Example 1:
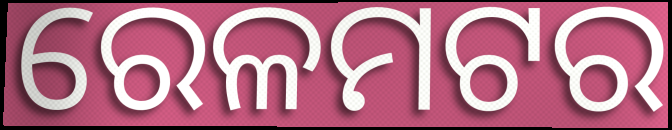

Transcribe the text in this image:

ରେଳମଟର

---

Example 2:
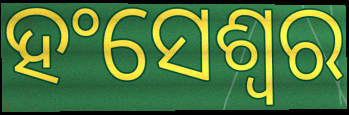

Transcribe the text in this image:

ହଂସେଶ୍ୱର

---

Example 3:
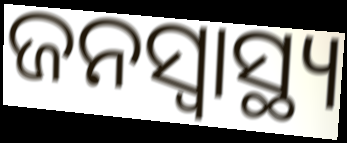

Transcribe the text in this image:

ଜନସ୍ୱାସ୍ଥ୍ୟ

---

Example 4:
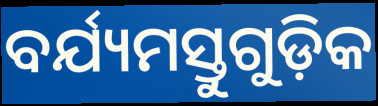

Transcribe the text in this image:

ବର୍ଯ୍ୟମସ୍ତୁଗୁଡ଼ିକ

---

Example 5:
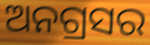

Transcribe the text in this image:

ଅନଗ୍ରସର